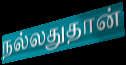
நல்லதுதான்